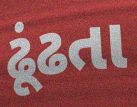
ઢૂંઢતા